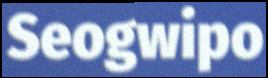
Seogwipo